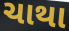
ચાથા